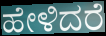
ಹೇಳಿದರೆ